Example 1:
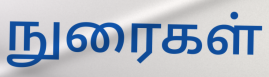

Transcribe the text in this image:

நுரைகள்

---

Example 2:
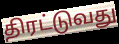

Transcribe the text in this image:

திரட்டுவது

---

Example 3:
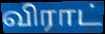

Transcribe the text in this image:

விராட்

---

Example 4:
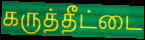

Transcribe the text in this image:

கருத்தீட்டை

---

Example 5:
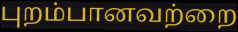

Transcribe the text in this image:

புறம்பானவற்றை